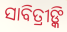
ସାବିତ୍ରୀଙ୍କି